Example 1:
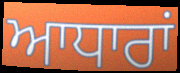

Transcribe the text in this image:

ਆਧਾਰਾਂ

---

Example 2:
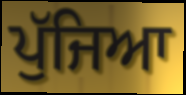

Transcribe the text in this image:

ਪੁੱਜਿਆ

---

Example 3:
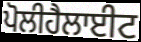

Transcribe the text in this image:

ਪੋਲੀਹੈਲਾਈਟ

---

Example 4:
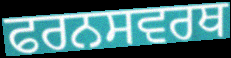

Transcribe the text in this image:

ਫਰਨਸਵਰਥ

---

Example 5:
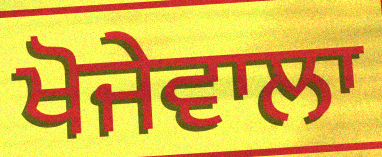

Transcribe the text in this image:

ਖੋਜੇਵਾਲਾ